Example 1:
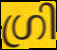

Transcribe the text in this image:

ഗ്രി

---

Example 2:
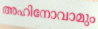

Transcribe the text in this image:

അഹിനോവാമും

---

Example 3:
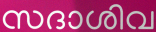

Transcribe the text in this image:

സദാശിവ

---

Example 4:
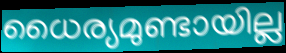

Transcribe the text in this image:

ധൈര്യമുണ്ടായില്ല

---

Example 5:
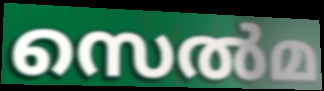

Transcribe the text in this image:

സെൽമ